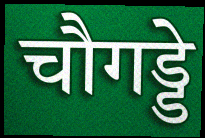
चौगड्डे